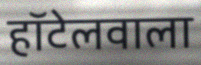
हॉटेलवाला